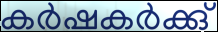
കർഷകർക്കു്